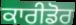
ਕਾਰੀਡੋਰ